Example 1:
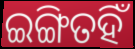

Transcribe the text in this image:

ଇଙ୍ଗିତହିଁ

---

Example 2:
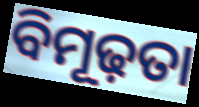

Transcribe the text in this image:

ବିମୂଢ଼ତା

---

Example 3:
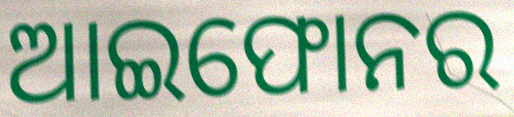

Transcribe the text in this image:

ଆଇଫୋନର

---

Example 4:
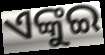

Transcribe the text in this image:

ଏଙ୍କୁଇ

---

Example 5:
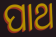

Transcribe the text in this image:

ପାଥ